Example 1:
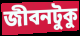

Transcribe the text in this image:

জীবনটুকু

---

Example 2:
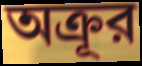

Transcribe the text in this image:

অক্রূর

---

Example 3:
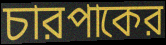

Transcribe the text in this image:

চারপাকের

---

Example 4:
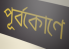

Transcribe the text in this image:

পূর্বকোণে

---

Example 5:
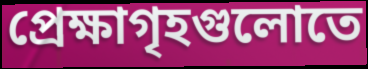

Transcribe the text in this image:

প্রেক্ষাগৃহগুলোতে